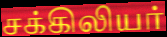
சக்கிலியர்